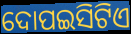
ଦୋପଇସିଟିଏ